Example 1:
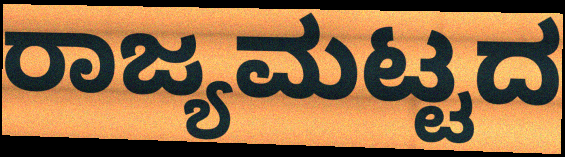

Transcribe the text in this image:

ರಾಜ್ಯಮಟ್ಟದ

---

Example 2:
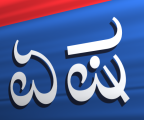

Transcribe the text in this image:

ಏಷ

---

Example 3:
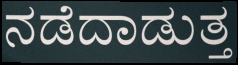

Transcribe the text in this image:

ನಡೆದಾಡುತ್ತ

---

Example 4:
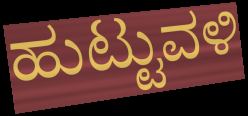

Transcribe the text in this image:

ಹುಟ್ಟುವಳಿ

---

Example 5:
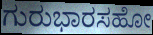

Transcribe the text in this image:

ಗುರುಭಾರಸಹೋ